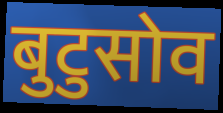
बुटुसोव